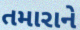
તમારાને